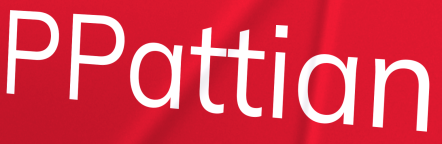
PPattian